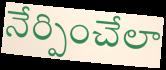
నేర్పించేలా